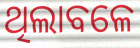
ଥିଲାବଳେ